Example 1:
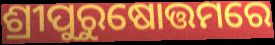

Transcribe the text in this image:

ଶ୍ରୀପୁରୁଷୋତ୍ତମରେ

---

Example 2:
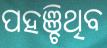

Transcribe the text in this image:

ପହଞ୍ଚିଥିବ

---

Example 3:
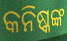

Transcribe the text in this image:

କନିଷ୍କଙ୍କ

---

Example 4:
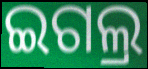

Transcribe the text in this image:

ଇଗଲ୍ର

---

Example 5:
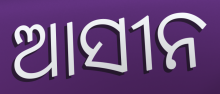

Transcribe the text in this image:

ଆସୀନ